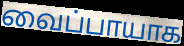
வைப்பாயாக